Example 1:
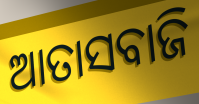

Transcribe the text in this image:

ଆତାସବାଜି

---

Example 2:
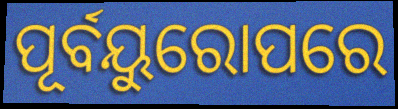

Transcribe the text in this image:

ପୂର୍ବୟୁରୋପରେ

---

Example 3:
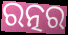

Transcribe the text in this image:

ରତ୍ନର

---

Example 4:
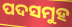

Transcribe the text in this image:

ପଦସମୁହ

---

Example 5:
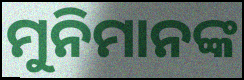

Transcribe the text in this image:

ମୁନିମାନଙ୍କ